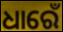
ଧାରେଁ